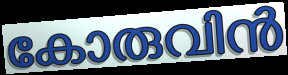
കോരുവിൻ